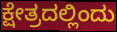
ಕ್ಷೇತ್ರದಲ್ಲಿಂದು